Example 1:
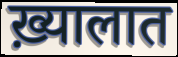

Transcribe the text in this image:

ख़्यालात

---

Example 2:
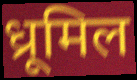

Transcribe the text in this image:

ध्रूमिल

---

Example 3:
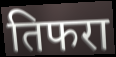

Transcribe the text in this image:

तिफरा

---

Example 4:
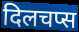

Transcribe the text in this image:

दिलचप्स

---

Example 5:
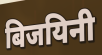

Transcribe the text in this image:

बिजयिनी